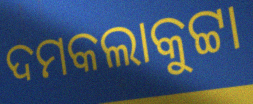
ଦମକଲାକୁଟ୍ଟା